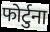
फोर्टुना